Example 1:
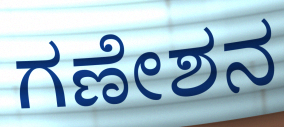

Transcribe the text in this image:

ಗಣೇಶನ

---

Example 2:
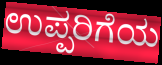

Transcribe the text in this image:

ಉಪ್ಪರಿಗೆಯ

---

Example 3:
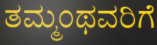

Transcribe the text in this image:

ತಮ್ಮಂಥವರಿಗೆ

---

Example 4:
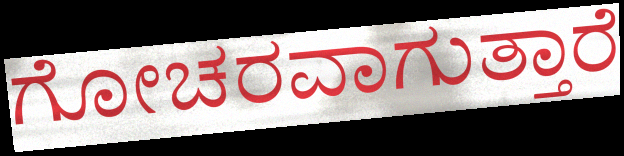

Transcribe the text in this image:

ಗೋಚರವಾಗುತ್ತಾರೆ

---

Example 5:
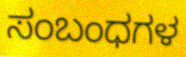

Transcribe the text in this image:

ಸಂಬಂಧಗಳ